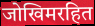
जोखिमरहित